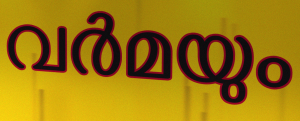
വർമയും